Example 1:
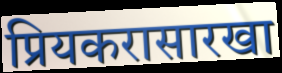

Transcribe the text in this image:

प्रियकरासारखा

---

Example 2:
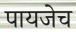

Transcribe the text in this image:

पायजेच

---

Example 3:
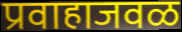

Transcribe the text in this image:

प्रवाहाजवळ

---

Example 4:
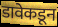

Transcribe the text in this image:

डावेकडून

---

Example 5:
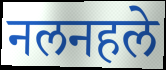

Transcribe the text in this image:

नलनहले